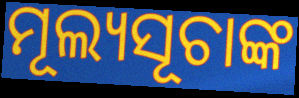
ମୂଲ୍ୟସୂଚାଙ୍କ